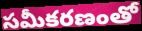
సమీకరణంతో